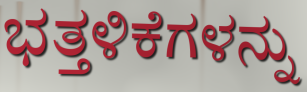
ಭತ್ತಳಿಕೆಗಳನ್ನು